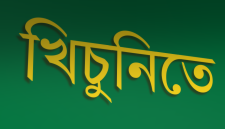
খিচুনিতে